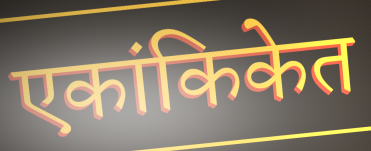
एकांकिकेत